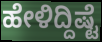
ಹೇಳಿದ್ದಿಷ್ಟೆ